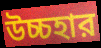
উচ্চহার